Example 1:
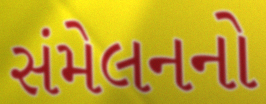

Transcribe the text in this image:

સંમેલનનો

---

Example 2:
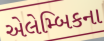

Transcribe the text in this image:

એલેમ્બિકના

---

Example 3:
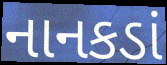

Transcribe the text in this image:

નાનકડાં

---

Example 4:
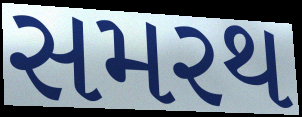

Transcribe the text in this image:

સમરથ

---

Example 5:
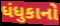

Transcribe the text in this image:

ધંધુકાનો